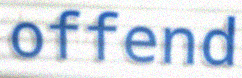
offend